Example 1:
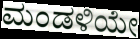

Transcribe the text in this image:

ಮಂಡಳಿಯೇ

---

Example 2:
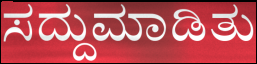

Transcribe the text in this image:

ಸದ್ದುಮಾಡಿತು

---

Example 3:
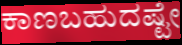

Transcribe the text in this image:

ಕಾಣಬಹುದಷ್ಟೇ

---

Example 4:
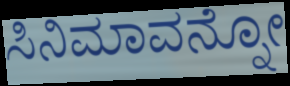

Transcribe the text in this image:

ಸಿನಿಮಾವನ್ನೋ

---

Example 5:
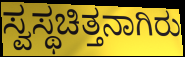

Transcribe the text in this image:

ಸ್ವಸ್ಥಚಿತ್ತನಾಗಿರು